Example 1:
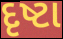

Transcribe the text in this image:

દૃષ્ટા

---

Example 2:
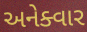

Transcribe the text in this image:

અનેક્વાર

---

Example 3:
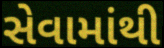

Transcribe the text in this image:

સેવામાંથી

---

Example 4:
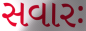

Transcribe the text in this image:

સવારઃ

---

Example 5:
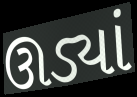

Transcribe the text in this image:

ઊડ્યાં